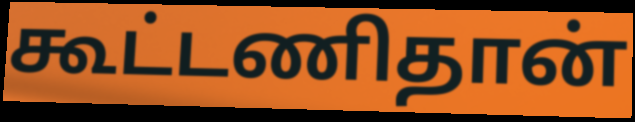
கூட்டணிதான்